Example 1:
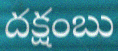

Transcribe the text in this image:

దక్షంబు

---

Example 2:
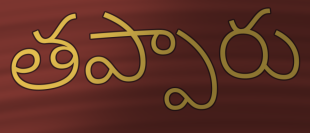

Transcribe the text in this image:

తప్పారు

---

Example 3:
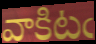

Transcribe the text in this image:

వాకిటఁ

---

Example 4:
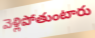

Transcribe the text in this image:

వెళ్లిపోతుంటారు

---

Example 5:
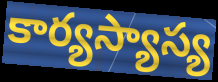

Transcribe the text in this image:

కార్యస్యాస్య